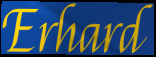
Erhard